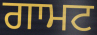
ਗਾਮਟ